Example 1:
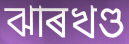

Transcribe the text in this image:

ঝাৰখণ্ড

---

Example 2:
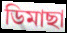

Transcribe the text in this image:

ডিমাছা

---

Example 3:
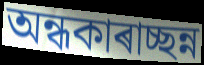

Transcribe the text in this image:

অন্ধকাৰাচ্ছন্ন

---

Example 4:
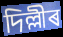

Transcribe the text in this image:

দিল্লীৰ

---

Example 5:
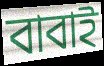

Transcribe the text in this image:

বাবাই